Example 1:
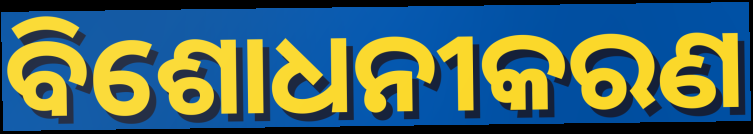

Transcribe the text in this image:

ବିଶୋଧନୀକରଣ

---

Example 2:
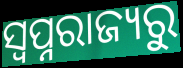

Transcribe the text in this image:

ସ୍ୱପ୍ନରାଜ୍ୟରୁ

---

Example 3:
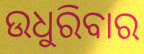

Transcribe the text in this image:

ଉଧୁରିବାର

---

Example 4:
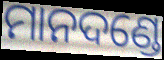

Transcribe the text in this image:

ମାନଦଣ୍ଡେ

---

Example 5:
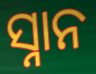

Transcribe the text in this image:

ସ୍ନାନ